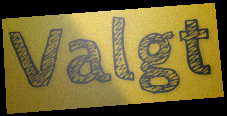
Valgt